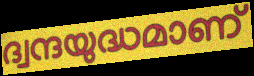
ദ്വന്ദയുദ്ധമാണ്